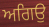
ਅਗਿਉ